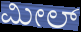
ಮೀಲ್